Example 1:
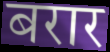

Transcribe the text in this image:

बरार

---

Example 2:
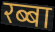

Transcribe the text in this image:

रब्बा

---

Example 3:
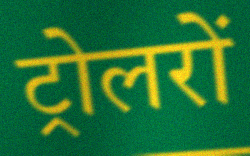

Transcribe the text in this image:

ट्रोलरों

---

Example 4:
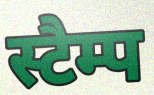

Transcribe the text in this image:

स्टैम्प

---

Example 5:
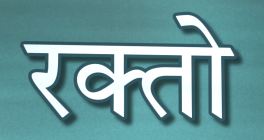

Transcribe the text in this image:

रक्तो